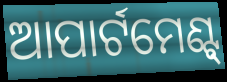
ଆପାର୍ଟମେଣ୍ଟ୍